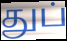
துப்